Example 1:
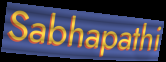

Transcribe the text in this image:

Sabhapathi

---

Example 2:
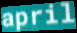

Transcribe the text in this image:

april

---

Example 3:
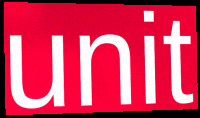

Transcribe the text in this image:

unit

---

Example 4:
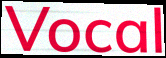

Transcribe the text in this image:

Vocal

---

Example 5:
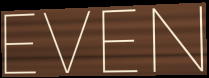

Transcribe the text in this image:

EVEN